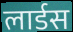
लार्डस